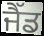
ਜੈੱਡ